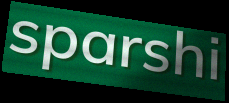
sparshi